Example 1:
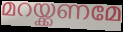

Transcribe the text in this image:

മറയ്ക്കണമേ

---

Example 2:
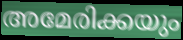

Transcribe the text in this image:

അമേരിക്കയും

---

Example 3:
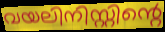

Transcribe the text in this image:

വയലിനിസ്റ്റിന്റെ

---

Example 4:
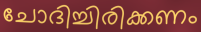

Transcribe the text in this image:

ചോദിച്ചിരിക്കണം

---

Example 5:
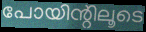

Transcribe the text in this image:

പോയിന്റിലൂടെ